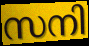
സനി